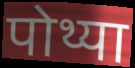
पोथ्या